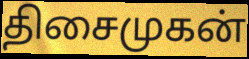
திசைமுகன்